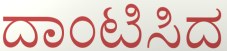
ದಾಂಟಿಸಿದ